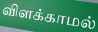
விளக்காமல்